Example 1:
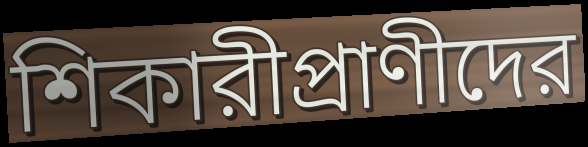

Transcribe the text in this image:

শিকারীপ্রাণীদের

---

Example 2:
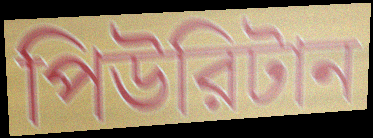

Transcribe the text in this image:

পিউরিটান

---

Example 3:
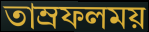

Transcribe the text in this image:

তাম্রফলময়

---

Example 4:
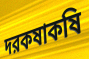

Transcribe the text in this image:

দরকষাকষি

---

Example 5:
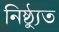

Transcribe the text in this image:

নিষ্ঠ্যুত